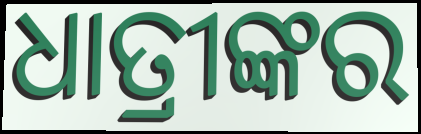
ଧାତ୍ରୀଙ୍କର